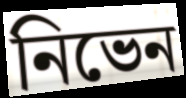
নিভেন